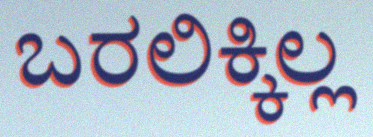
ಬರಲಿಕ್ಕಿಲ್ಲ